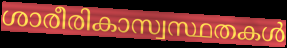
ശാരീരികാസ്വസ്ഥതകൾ